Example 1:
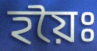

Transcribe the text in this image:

হয়ৈঃ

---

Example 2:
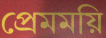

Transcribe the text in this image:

প্রেমময়ি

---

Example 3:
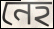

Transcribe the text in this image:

নেহ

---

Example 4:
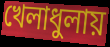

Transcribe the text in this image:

খেলাধুলায়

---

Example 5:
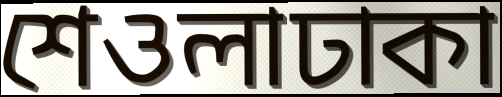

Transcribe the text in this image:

শেওলাঢাকা